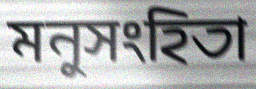
মনুসংহিতা